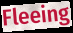
Fleeing